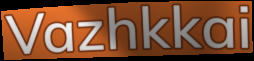
Vazhkkai